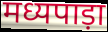
मध्यपाड़ा